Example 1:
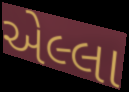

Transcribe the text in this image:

એલ્લા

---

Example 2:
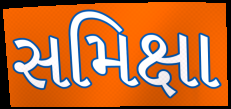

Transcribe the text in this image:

સમિક્ષા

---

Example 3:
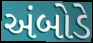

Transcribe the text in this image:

અંબોડે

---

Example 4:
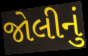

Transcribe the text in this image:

જોલીનું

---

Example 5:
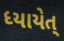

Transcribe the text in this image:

ધ્યાયેત્